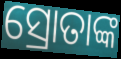
ସ୍ରୋତାଙ୍କ